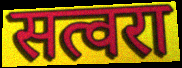
सत्वरा